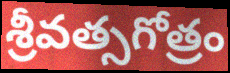
శ్రీవత్సగోత్రం